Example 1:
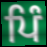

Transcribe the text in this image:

ਪਿੰ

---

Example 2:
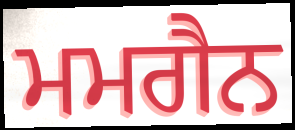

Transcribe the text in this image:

ਮਮਗੈਨ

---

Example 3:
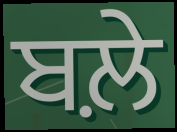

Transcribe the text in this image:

ਬਲ਼ੇ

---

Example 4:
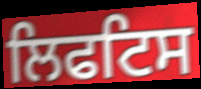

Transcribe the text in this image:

ਲਿਫਟਿਸ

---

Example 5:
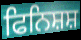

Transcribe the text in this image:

ਫਿਨਿਸ਼ਸ਼